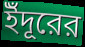
ইঁদূরের